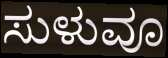
ಸುಳುವೂ